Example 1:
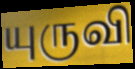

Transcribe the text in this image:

யுருவி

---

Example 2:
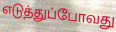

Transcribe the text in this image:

எடுத்துப்போவது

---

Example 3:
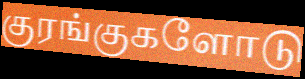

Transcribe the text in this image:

குரங்குகளோடு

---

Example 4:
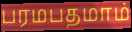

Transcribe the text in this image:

பரமபதமாம்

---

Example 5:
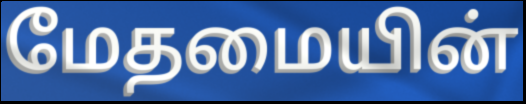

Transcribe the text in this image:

மேதமையின்